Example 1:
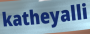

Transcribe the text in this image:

katheyalli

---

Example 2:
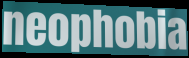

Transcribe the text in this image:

neophobia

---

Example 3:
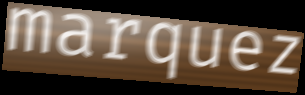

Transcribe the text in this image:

marquez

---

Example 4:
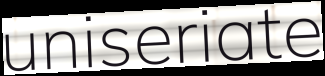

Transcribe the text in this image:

uniseriate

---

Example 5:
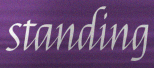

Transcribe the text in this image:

standing